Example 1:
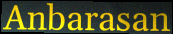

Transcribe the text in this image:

Anbarasan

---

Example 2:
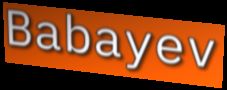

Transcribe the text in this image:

Babayev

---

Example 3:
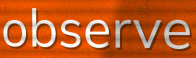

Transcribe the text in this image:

observe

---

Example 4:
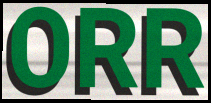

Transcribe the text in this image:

ORR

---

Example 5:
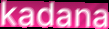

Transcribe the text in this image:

kadana